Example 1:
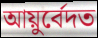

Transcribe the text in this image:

আয়ুৰ্বেদত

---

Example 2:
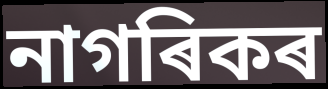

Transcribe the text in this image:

নাগৰিকৰ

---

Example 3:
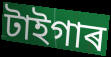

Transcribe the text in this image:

টাইগাৰ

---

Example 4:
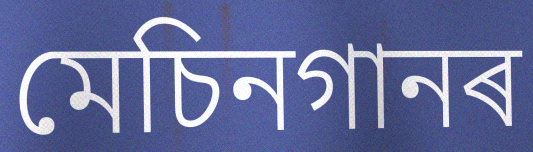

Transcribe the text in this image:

মেচিনগানৰ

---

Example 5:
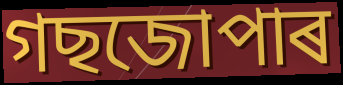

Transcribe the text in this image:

গছজোপাৰ